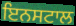
ਇਨਸਟਾਲ